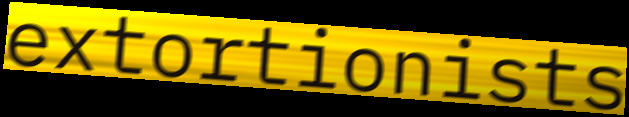
extortionists